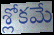
శ్లోకమే